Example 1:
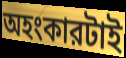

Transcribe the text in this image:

অহংকারটাই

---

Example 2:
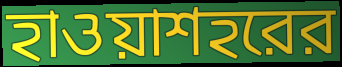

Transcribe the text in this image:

হাওয়াশহরের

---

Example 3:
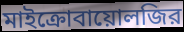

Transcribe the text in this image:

মাইক্রোবায়োলজির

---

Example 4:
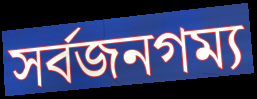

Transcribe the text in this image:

সর্বজনগম্য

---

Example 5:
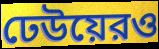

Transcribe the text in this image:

ঢেউয়েরও